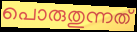
പൊരുതുന്നത്